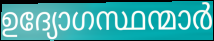
ഉദ്യോഗസ്ഥന്മാർ